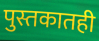
पुस्तकातही